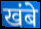
खंबे